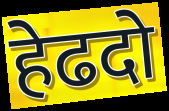
हेढदो